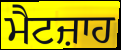
ਮੈਟਜ਼ਾਹ